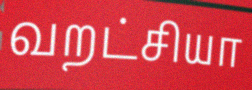
வறட்சியா